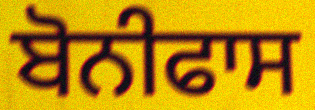
ਬੋਨੀਫਾਸ